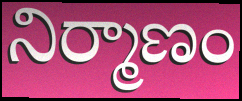
నిర్మాణం